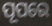
ପୂପରେ